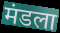
मंडला